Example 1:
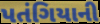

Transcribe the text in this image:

પતંગિયાની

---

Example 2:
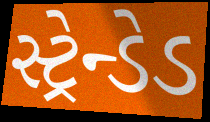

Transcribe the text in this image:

સ્ટ્રેન્ડેડ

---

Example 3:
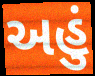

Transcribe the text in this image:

અહું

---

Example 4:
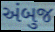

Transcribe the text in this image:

અંબુજ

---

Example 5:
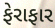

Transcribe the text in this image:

ફેરાફાર